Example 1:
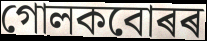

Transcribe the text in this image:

গোলকবোৰৰ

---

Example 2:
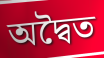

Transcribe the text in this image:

অদ্বৈত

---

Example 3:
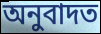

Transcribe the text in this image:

অনুবাদত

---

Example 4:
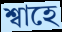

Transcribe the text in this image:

শ্বাহে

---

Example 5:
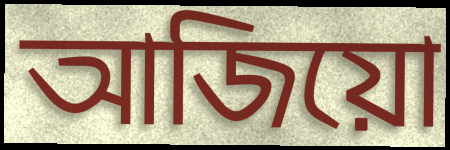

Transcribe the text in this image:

আজিয়ো